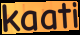
kaati